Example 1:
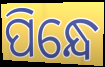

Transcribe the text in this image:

ପିନ୍ଧେ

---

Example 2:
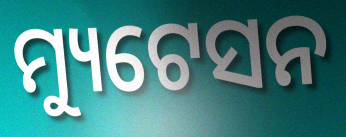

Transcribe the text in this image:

ମ୍ୟୁଟେସନ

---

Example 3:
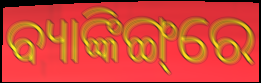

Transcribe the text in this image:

ବ୍ୟାଙ୍କିଙ୍ଗ୍‌ରେ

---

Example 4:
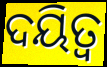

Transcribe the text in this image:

ଦୟିତ୍ୱ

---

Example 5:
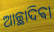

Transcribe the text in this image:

ଆଚ୍ଛାଦିଵା